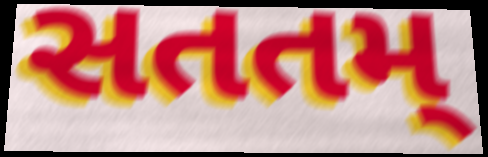
સતતમ્